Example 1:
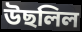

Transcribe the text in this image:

উছলিল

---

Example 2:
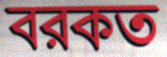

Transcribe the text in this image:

বরকত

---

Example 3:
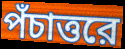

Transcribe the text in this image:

পঁচাত্তরে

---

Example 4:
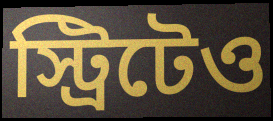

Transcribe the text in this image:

স্ট্রিটেও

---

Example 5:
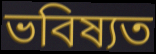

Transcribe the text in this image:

ভবিষ্যত